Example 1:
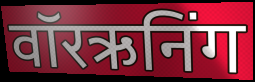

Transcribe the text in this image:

वॉरऋनिंग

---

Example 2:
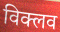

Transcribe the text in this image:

विक्लव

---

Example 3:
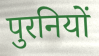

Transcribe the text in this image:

पुरनियों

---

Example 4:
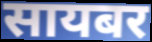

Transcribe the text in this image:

सायबर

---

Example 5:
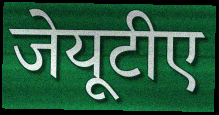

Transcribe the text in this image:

जेयूटीए